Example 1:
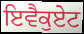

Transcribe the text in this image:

ਇਵੈਕੁਏਟ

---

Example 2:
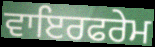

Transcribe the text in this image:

ਵਾਇਰਫਰੇਮ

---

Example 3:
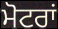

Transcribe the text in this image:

ਮੋਟਰਾਂ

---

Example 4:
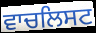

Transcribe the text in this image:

ਵਾਚਲਿਸਟ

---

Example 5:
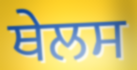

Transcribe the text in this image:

ਥੇਲਸ